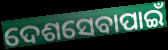
ଦେଶସେବାପାଇଁ